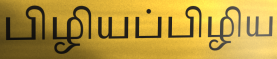
பிழியப்பிழிய